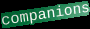
companions